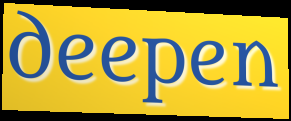
deepen